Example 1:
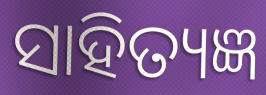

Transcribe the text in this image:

ସାହିତ୍ୟଜ୍ଞ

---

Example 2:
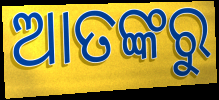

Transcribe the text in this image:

ଆତଙ୍କରୁ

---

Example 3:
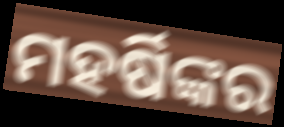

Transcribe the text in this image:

ମହର୍ଷିଙ୍କର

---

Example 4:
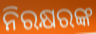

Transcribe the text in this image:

ନିରକ୍ଷରଙ୍କ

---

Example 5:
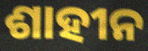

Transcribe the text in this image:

ଶାହୀନ